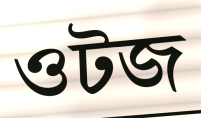
ওটজ